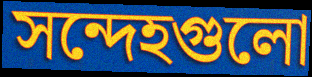
সন্দেহগুলো